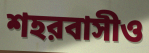
শহরবাসীও